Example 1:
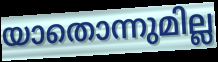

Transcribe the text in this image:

യാതൊന്നുമില്ല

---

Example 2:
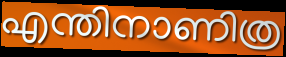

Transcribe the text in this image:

എന്തിനാണിത്ര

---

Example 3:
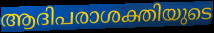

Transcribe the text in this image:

ആദിപരാശക്തിയുടെ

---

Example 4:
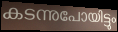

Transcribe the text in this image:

കടന്നുപോയിട്ടും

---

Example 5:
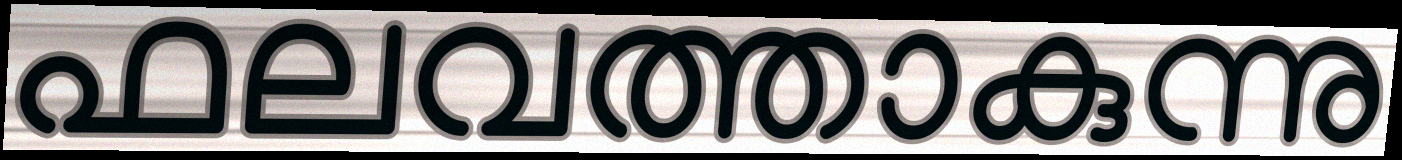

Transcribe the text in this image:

ഫലവത്താകുന്നു